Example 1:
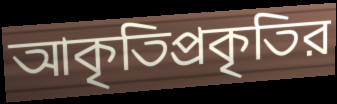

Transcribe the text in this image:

আকৃতিপ্রকৃতির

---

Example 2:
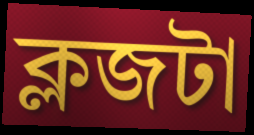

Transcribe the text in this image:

ক্লজটা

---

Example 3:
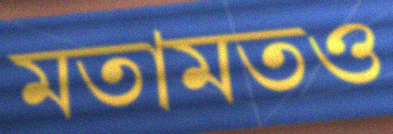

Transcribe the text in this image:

মতামতও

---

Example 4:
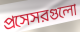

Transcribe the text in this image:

প্রসেসরগুলো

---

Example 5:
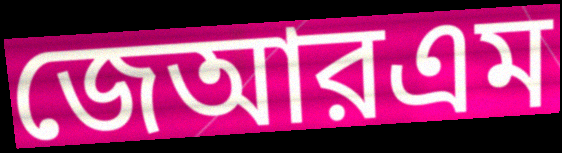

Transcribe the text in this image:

জেআরএম